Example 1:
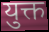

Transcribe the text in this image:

युक्त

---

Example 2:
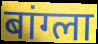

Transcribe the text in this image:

बांग्ला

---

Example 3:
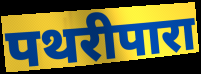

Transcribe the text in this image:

पथरीपारा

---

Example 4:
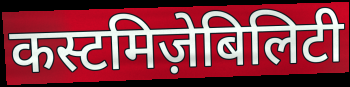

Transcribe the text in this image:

कस्टमिज़ेबिलिटी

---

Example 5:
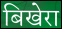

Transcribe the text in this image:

बिखेरा